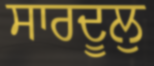
ਸਾਰਦੂਲੁ